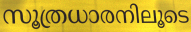
സൂത്രധാരനിലൂടെ